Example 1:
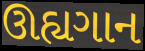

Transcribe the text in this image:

ઊહ્યગાન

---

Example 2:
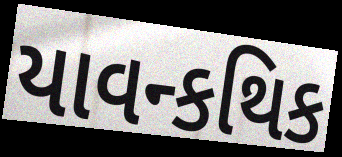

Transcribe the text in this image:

યાવન્કથિક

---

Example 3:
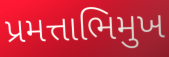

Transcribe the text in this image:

પ્રમત્તાભિમુખ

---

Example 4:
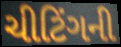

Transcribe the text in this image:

ચીટિંગની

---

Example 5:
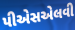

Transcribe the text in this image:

પીએસએલવી